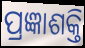
ପ୍ରଜ୍ଞାଶକ୍ତି